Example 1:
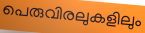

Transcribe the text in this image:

പെരുവിരലുകളിലും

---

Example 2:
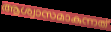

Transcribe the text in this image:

ആശ്വാസമാകുന്നത്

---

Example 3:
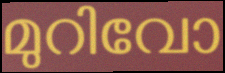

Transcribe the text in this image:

മുറിവോ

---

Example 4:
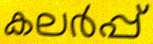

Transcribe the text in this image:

കലർപ്പ്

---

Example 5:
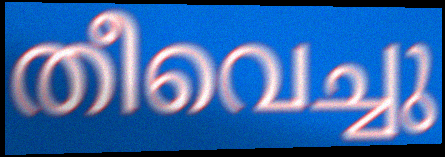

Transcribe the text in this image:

തീവെച്ചു